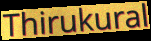
Thirukural